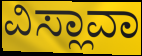
ವಿಸ್ಲಾವಾ